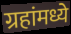
ग्रहांमध्ये